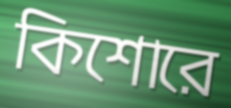
কিশোরে